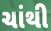
ચાંથી